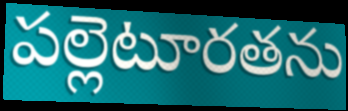
పల్లెటూరతను